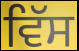
ਵਿੱਸ